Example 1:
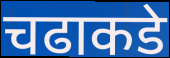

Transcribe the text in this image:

चढाकडे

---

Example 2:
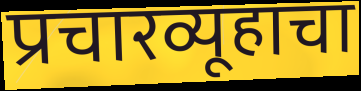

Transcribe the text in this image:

प्रचारव्यूहाचा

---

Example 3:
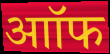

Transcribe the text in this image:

आॉफ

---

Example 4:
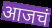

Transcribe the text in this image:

आजचं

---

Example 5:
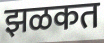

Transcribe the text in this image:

झळकत